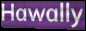
Hawally